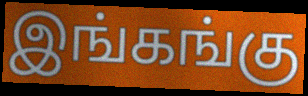
இங்கங்கு